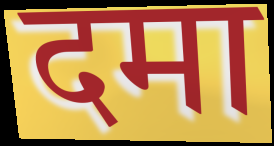
दमा